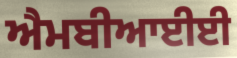
ਐਮਬੀਆਈਈ